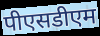
पीएसडीएम